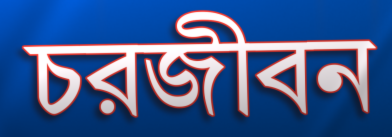
চরজীবন